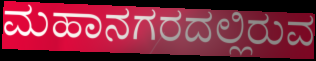
ಮಹಾನಗರದಲ್ಲಿರುವ